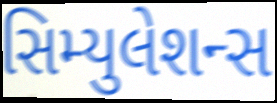
સિમ્યુલેશન્સ